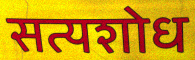
सत्यशोध